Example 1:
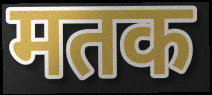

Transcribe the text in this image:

मतक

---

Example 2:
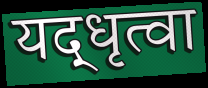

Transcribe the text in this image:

यद्धृत्वा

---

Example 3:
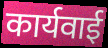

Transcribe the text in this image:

कार्यवाई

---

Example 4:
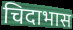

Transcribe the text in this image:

चिदाभास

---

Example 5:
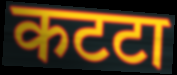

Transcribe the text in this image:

कटटा